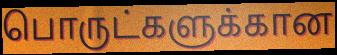
பொருட்களுக்கான